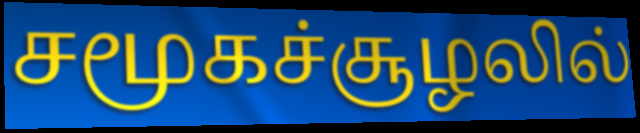
சமூகச்சூழலில்